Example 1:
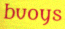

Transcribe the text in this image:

buoys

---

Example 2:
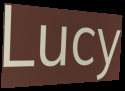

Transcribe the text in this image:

Lucy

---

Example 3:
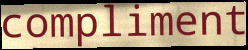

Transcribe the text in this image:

compliment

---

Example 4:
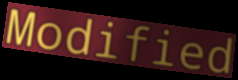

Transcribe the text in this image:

Modified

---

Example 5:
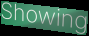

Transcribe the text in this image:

Showing